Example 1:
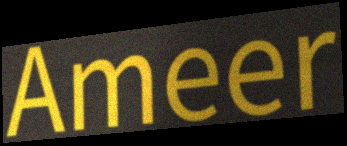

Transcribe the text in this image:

Ameer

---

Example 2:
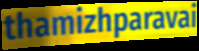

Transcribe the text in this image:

thamizhparavai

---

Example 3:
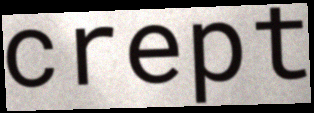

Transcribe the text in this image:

crept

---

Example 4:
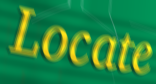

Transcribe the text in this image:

Locate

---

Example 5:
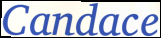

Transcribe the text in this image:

Candace